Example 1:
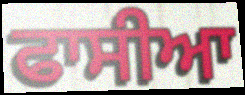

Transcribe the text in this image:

ਫਾਸੀਆ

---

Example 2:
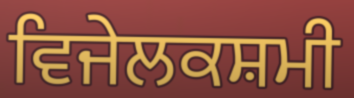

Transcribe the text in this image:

ਵਿਜੇਲਕਸ਼ਮੀ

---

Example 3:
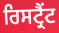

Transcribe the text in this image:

ਰਿਸਟ੍ਰੈਂਟ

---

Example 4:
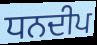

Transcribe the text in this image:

ਧਨਦੀਪ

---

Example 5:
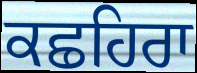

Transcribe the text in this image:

ਕਛਹਿਰਾ